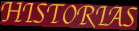
HISTORIAS